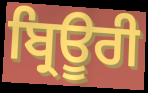
ਬ੍ਰਿਊਰੀ